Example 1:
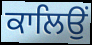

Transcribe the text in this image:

ਕਾਲਿਉਂ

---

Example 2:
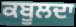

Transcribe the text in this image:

ਕਬੂਲਦਾ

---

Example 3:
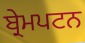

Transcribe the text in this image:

ਬ੍ਰੇਮਪਟਨ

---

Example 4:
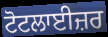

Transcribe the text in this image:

ਟੋਟਲਾਈਜ਼ਰ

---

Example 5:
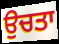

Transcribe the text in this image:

ਉਚਤਾ